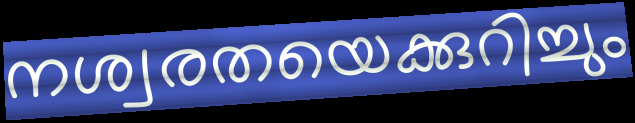
നശ്വരതയെക്കുറിച്ചും